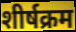
शीर्षक्रम